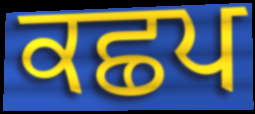
ਕਛਪ